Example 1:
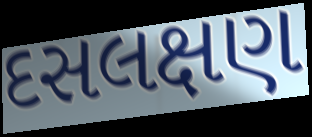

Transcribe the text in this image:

દસલક્ષણ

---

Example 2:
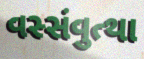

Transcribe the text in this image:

વસ્સંવુત્થા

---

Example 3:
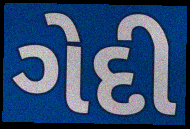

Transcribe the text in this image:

ગેદી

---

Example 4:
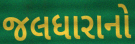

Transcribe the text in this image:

જલધારાનો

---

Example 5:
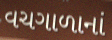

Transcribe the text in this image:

વચગાળાનાં